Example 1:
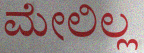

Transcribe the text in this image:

ಮೇಲಿಲ್ಲ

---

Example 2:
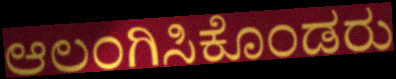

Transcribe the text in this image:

ಆಲಂಗಿಸಿಕೊಂಡರು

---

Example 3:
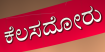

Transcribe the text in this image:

ಕೆಲಸದೋರು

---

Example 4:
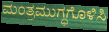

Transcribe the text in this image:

ಮಂತ್ರಮುಗ್ಧಗೊಳಿಸಿ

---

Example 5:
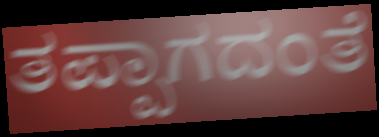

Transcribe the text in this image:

ತಪ್ಪಾಗದಂತೆ